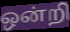
ஒன்றி